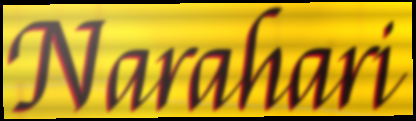
Narahari